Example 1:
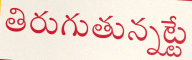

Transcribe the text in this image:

తిరుగుతున్నట్టే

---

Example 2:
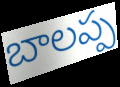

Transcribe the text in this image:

బాలప్ప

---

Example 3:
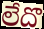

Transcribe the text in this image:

లేదొ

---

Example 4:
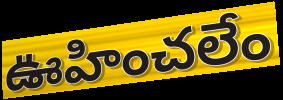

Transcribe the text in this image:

ఊహించలేం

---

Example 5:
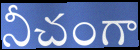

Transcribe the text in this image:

నీచంగా